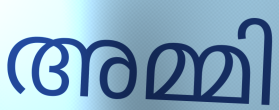
അമ്മി